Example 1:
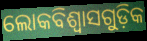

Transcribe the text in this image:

ଲୋକବିଶ୍ୱାସଗୁଡ଼ିକ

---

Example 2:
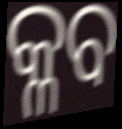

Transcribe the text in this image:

କ୍ଳବ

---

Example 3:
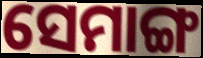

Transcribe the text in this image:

ସେମାଙ୍ଗ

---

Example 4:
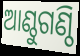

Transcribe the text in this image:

ଆଣ୍ଠୁଗଣ୍ଠି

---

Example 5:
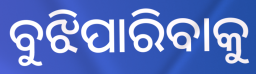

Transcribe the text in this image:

ବୁଝିପାରିବାକୁ